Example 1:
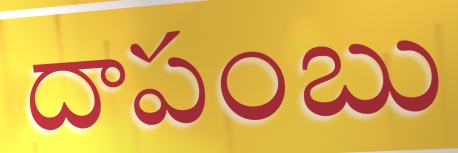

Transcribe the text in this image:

దాపంబు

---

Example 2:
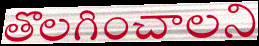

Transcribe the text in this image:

తొలగించాలని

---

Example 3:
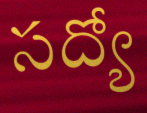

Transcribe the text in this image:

సద్యో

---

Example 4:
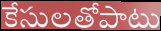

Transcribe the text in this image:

కేసులతోపాటు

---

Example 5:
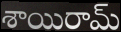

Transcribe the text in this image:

శాయిరామ్